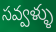
సవ్వళ్ళు